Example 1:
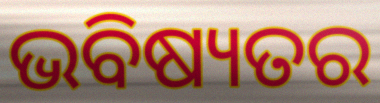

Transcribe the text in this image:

ଭବିଷ୍ୟତର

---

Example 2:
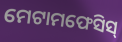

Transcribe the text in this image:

ମେଟାମଫେସିସ୍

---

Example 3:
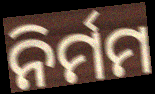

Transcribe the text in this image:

ନିର୍ମମ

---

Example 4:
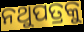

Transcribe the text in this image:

ନଥୁପତ୍ରକୁ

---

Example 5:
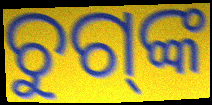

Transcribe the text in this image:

ଚୁଗ୍‌ଙ୍କ